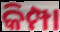
କିମ୍ପା